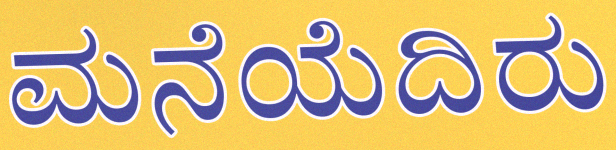
ಮನೆಯೆದಿರು